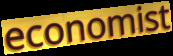
economist